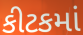
કીટકમાં